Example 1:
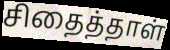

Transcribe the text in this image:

சிதைத்தாள்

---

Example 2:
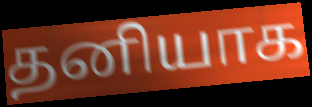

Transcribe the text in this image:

தனியாக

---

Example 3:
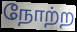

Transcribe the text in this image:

நோற்ற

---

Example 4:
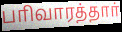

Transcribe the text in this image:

பரிவாரத்தார்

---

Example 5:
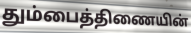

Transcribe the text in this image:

தும்பைத்திணையின்